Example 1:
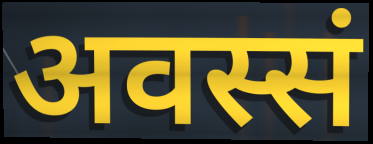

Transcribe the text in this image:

अवस्सं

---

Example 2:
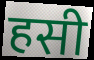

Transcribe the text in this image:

हसी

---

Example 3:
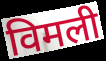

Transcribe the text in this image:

विमली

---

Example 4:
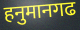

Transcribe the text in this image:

हनुमानगढ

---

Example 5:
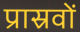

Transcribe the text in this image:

प्रास्रवों